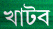
খাটব